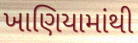
ખાણિયામાંથી